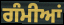
ਗੰਮੀਆਂ